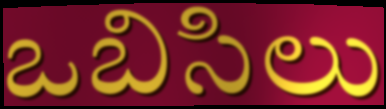
ఒబిసిలు